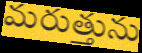
మరుత్తును